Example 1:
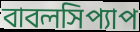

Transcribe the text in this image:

বাবলসিপ্যাপ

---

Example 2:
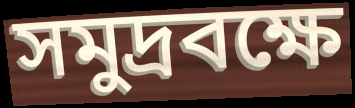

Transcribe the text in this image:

সমুদ্রবক্ষে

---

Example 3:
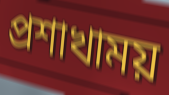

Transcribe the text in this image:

প্রশাখাময়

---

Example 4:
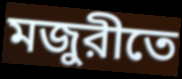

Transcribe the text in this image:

মজুরীতে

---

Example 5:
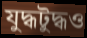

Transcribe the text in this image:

যুদ্ধটুদ্ধও